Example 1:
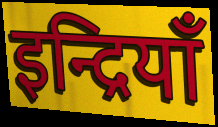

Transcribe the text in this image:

इन्द्रियाँ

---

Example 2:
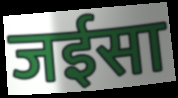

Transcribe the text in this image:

जईसा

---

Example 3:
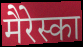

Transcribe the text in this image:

मैरेस्का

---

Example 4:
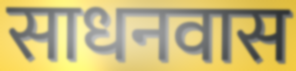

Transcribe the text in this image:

साधनवास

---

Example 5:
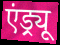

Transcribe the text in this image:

एंड्र्यू